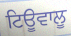
ਟਿਊਵਾਲੂ